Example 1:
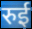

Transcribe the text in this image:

रुई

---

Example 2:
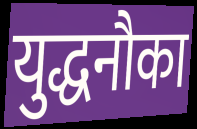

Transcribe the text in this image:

युद्धनौका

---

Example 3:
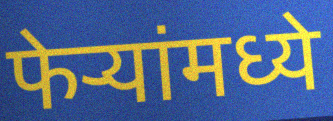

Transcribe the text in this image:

फेऱ्यांमध्ये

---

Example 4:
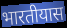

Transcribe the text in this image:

भारतीयास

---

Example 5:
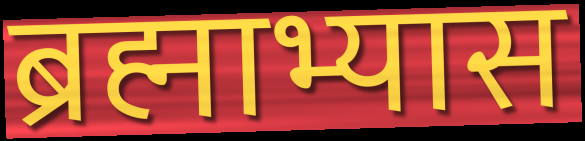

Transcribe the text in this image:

ब्रह्माभ्यास